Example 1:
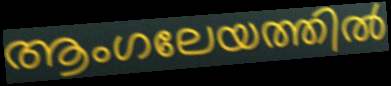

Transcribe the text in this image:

ആംഗലേയത്തിൽ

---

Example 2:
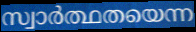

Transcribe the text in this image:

സ്വാർത്ഥതയെന്ന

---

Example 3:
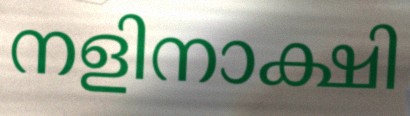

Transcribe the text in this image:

നളിനാക്ഷി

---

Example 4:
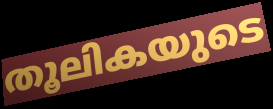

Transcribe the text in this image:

തൂലികയുടെ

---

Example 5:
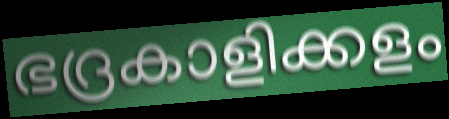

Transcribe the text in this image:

ഭദ്രകാളിക്കളം